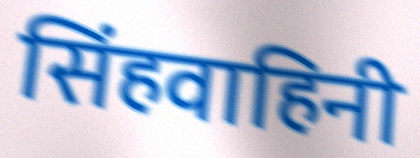
सिंहवाहिनी